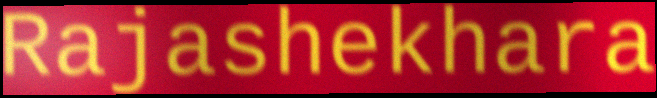
Rajashekhara